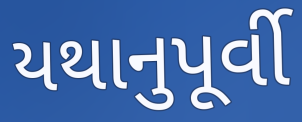
યથાનુપૂર્વી